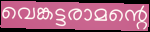
വെങ്കട്ടരാമന്റെ